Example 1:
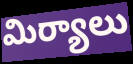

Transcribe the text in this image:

మిర్యాలు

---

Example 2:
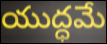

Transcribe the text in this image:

యుద్ధమే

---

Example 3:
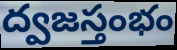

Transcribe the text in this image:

ద్వజస్తంభం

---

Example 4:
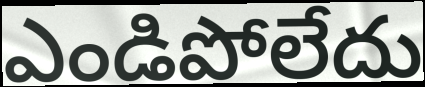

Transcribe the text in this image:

ఎండిపోలేదు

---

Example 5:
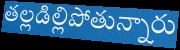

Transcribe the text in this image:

తల్లడిల్లిపోతున్నారు